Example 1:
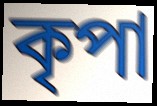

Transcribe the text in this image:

কৃপা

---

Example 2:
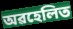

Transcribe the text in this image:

অৱহেলিত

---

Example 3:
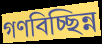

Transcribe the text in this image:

গণবিচ্ছিন্ন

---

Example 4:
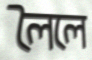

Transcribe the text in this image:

লৈলে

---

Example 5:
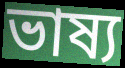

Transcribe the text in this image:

ভাষ্য